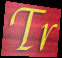
Tr